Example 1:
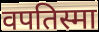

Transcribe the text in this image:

वपतिस्मा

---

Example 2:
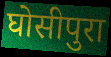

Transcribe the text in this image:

घोसीपुरा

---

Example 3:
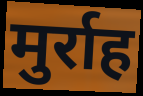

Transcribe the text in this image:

मुर्राह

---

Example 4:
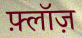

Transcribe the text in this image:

फ़्लॉज़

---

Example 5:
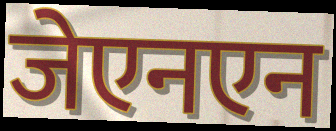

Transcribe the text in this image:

जेएनएन